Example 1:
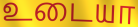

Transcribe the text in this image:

உடையா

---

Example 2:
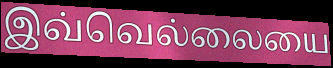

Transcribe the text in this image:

இவ்வெல்லையை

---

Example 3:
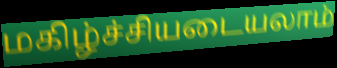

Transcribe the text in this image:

மகிழ்ச்சியடையலாம்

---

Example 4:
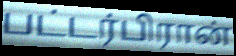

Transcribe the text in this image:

பட்டர்பிரான்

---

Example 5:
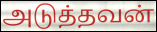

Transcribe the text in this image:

அடுத்தவன்